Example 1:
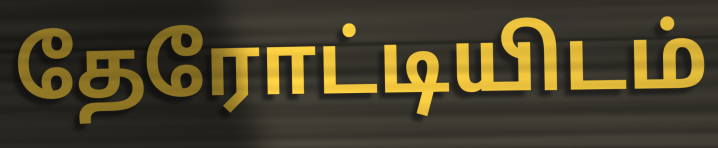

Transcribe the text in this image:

தேரோட்டியிடம்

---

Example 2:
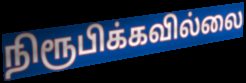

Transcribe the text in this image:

நிரூபிக்கவில்லை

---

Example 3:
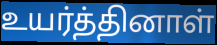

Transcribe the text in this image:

உயர்த்தினாள்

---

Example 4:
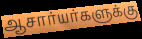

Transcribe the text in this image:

ஆசார்யர்களுக்கு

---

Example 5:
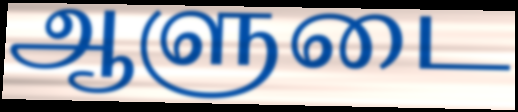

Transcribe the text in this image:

ஆளுடை